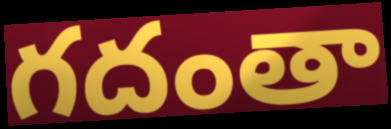
గదంతా